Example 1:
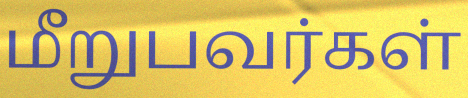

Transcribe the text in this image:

மீறுபவர்கள்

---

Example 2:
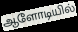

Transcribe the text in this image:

ஆளோடியில்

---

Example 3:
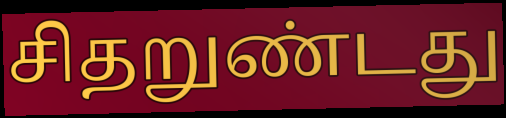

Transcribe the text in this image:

சிதறுண்டது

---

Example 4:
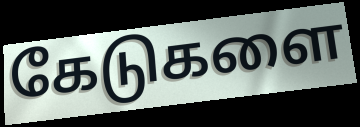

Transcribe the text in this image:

கேடுகளை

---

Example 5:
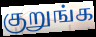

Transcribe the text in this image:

குறுங்க